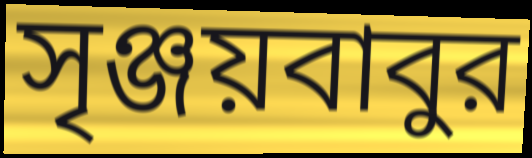
সৃঞ্জয়বাবুর